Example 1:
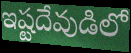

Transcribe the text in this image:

ఇష్టదేవుడిలో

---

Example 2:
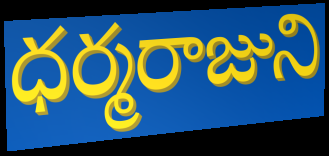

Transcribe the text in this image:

ధర్మరాజుని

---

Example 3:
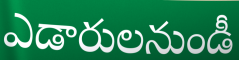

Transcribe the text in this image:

ఎడారులనుండీ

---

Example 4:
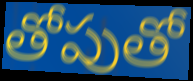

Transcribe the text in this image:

తోపుతో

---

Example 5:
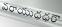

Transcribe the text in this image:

వరాయుధధరౌ